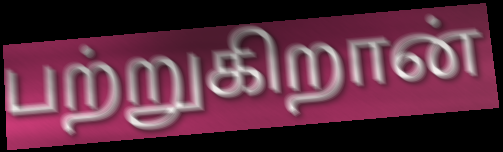
பற்றுகிறான்